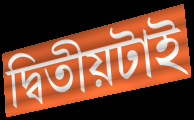
দ্বিতীয়টাই